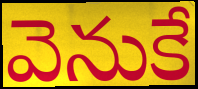
వెనుకే